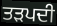
ਤੜਪਦੀ